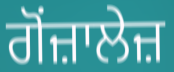
ਗੋਂਜ਼ਾਲੇਜ਼